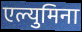
एल्युमिना